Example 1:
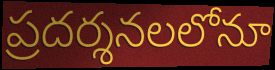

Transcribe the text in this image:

ప్రదర్శనలలోనూ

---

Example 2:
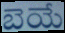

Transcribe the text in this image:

బెయే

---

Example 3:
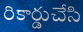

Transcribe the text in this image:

రికార్డుచేసి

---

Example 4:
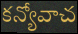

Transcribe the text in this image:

కన్యోవాచ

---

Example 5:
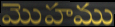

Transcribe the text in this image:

మొహము